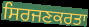
ਸਿਰਜਣਕਰਤਾ